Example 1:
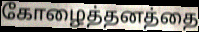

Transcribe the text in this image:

கோழைத்தனத்தை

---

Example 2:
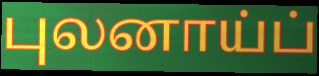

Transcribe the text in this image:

புலனாய்ப்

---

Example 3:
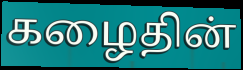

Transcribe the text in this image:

கழைதின்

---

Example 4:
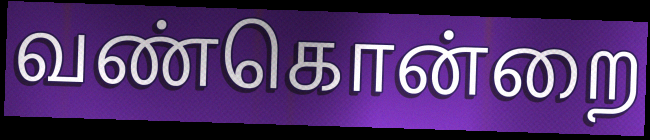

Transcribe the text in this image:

வண்கொன்றை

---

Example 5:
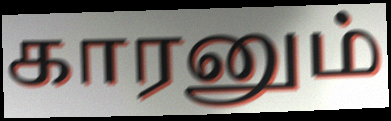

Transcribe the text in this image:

காரனும்